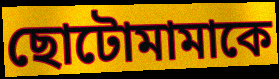
ছোটোমামাকে